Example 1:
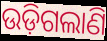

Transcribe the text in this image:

ଉଡ଼ିଗଲାଣି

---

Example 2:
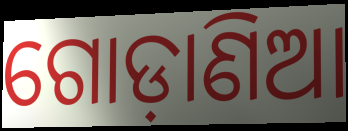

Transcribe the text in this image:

ଗୋଡ଼ାଣିଆ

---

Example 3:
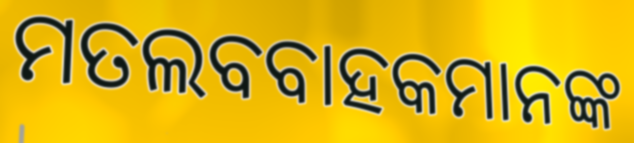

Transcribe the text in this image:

ମତଲବବାହକମାନଙ୍କ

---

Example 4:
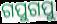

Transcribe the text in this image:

ଗପୁଗପୁ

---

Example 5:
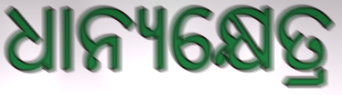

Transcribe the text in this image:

ଧାନ୍ୟକ୍ଷେତ୍ର